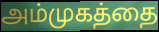
அம்முகத்தை